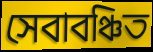
সেবাবঞ্চিত